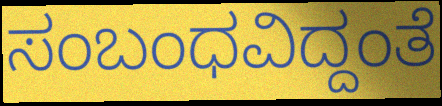
ಸಂಬಂಧವಿದ್ದಂತೆ